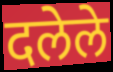
दलेले